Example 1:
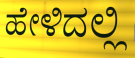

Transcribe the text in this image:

ಹೇಳಿದಲ್ಲಿ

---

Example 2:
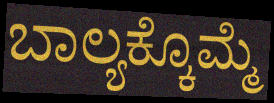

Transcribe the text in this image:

ಬಾಲ್ಯಕ್ಕೊಮ್ಮೆ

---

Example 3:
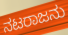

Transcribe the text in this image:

ನಟರಾಜನು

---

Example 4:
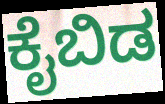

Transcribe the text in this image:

ಕೈಬಿಡ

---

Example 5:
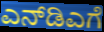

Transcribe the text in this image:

ಎನ್‌ಡಿಎಗೆ